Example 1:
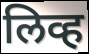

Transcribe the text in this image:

लिव्ह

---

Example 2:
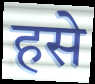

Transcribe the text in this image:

हसे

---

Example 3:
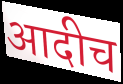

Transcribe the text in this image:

आदीच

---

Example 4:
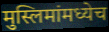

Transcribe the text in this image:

मुस्लिमांमध्येच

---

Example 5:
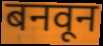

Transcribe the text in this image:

बनवून